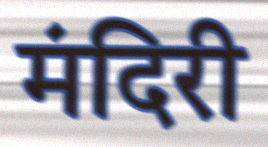
मंदिरी